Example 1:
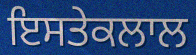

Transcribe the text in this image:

ਇਸਤੇਕਲਾਲ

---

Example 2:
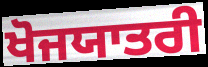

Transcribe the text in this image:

ਖੋਜਯਾਤਰੀ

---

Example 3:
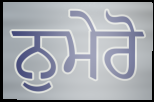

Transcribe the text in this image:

ਨੁਮੇਰੋ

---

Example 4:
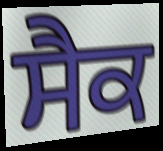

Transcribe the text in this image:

ਸੈਕ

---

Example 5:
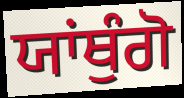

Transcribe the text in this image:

ਯਾਂਥੁੰਗੋ